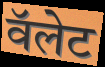
वॅलेट